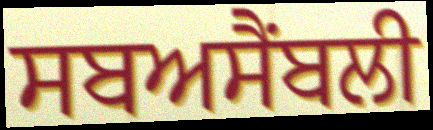
ਸਬਅਸੈਂਬਲੀ